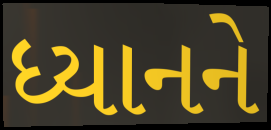
ધ્યાનને